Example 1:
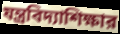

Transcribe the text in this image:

যন্ত্রবিদ্যাশিক্ষার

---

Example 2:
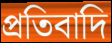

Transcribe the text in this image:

প্রতিবাদি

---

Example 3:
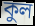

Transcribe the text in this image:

কুল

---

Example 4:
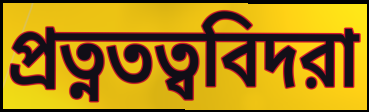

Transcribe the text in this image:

প্রত্নতত্ববিদরা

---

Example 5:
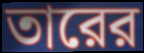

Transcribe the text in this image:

তারের